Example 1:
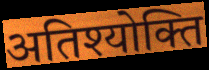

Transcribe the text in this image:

अतिश्योक्ति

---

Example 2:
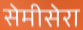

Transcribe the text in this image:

सेमीसेरा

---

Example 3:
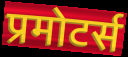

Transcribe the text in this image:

प्रमोटर्स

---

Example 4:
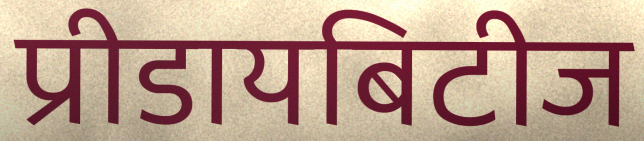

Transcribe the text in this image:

प्रीडायबिटीज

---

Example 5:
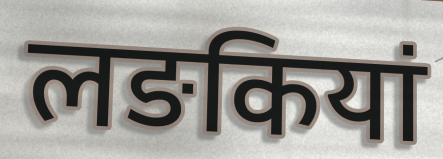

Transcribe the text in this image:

लङकियां